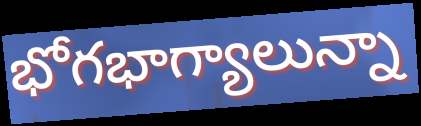
భోగభాగ్యాలున్నా